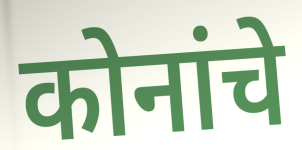
कोनांचे